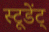
स्टूडेंट्